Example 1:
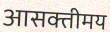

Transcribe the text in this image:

आसक्तीमय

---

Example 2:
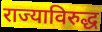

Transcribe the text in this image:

राज्याविरुद्ध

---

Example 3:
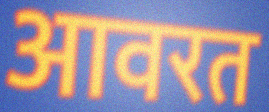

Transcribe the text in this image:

आवरत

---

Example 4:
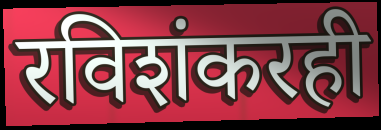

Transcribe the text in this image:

रविशंकरही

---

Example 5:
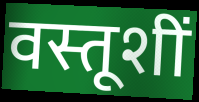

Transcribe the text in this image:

वस्तूशीं